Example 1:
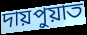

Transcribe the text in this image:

দায়পুয়াত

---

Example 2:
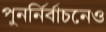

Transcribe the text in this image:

পুনর্নির্বাচনেও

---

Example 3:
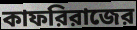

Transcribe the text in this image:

কাফরিরাজের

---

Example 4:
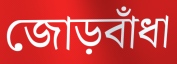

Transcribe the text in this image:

জোড়বাঁধা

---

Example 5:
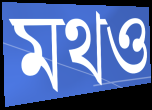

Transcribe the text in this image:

মথও